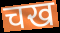
चख